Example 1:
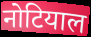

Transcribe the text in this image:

नोटियाल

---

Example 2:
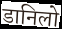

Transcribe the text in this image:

डानिलो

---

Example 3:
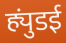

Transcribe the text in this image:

ह्युंडई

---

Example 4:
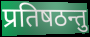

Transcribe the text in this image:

प्रतिषठन्तु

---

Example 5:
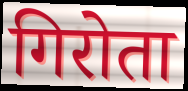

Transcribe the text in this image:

गिरोता